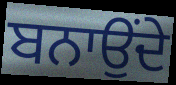
ਬਨਾਉਂਦੇ